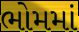
ભોમમાં